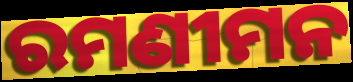
ରମଣୀମନ